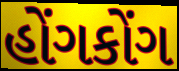
હોંગકોંગ